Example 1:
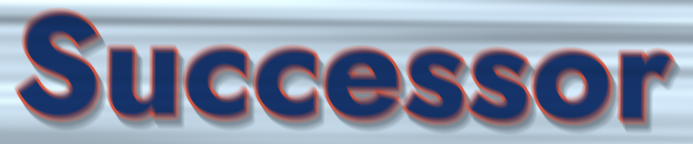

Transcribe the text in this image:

Successor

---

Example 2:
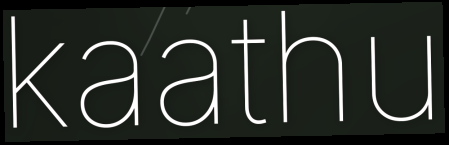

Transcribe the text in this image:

kaathu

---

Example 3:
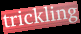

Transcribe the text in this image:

trickling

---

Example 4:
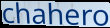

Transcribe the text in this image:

chahero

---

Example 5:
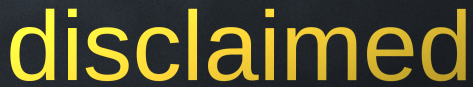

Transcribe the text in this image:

disclaimed